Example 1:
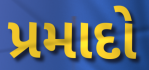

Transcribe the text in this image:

પ્રમાદો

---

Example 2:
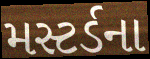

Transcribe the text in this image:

મસ્ટર્ડના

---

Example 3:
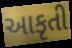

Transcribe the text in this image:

આકૃતી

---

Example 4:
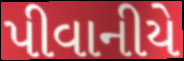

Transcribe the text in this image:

પીવાનીયે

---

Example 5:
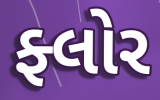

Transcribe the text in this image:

ફ્લોર